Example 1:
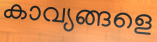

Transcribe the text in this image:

കാവ്യങ്ങളെ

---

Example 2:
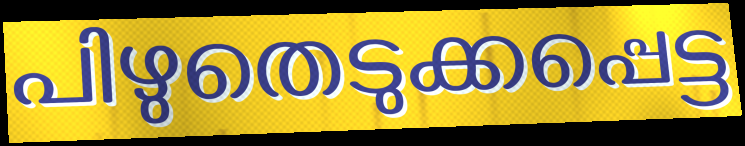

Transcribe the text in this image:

പിഴുതെടുക്കപ്പെട്ട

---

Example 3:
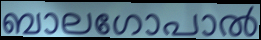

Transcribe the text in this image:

ബാലഗോപാൽ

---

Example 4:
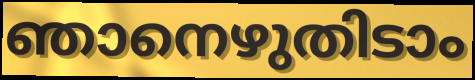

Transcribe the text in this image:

ഞാനെഴുതിടാം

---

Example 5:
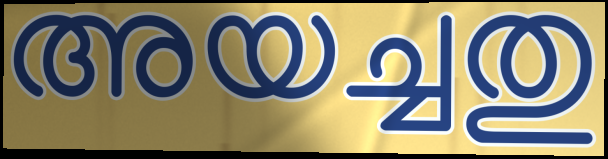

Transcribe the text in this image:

അയച്ചതു